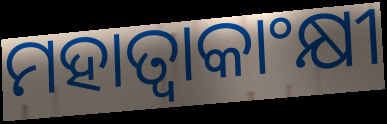
ମହାତ୍ୱାକାଂକ୍ଷୀ